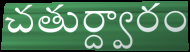
చతుర్ద్వారం